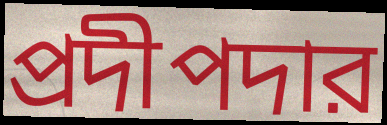
প্রদীপদার